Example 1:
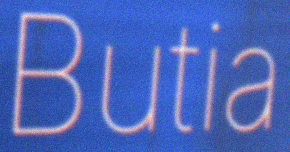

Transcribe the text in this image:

Butia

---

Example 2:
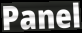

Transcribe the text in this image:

Panel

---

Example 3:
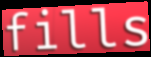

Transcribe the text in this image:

fills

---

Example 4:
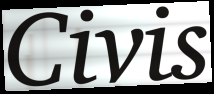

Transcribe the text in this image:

Civis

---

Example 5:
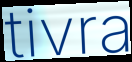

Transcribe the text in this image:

tivra